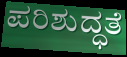
ಪರಿಶುದ್ಧತೆ